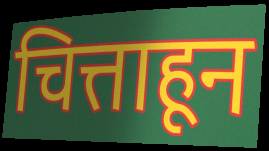
चित्ताहून